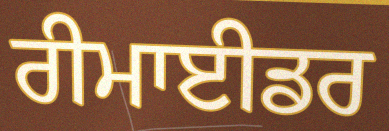
ਰੀਮਾਈਡਰ